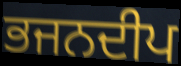
ਭਜਨਦੀਪ